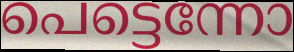
പെട്ടെന്നോ